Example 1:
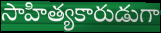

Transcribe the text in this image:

సాహిత్యకారుడుగా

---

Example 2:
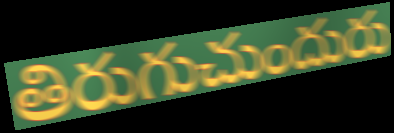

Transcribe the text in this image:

తిరుగుచుందురు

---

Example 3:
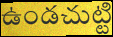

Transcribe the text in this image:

ఉండచుట్టి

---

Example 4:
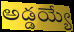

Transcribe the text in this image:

అడ్డయ్యే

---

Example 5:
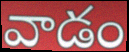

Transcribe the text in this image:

వాడం